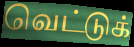
வெட்டுக்